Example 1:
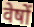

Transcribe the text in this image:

वेषों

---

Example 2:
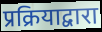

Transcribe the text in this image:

प्रक्रियाद्वारा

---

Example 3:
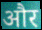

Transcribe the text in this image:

और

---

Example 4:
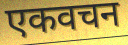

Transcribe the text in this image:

एकवचन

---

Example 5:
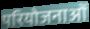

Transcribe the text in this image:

परियोजनाओं